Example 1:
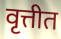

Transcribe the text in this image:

वृत्तीत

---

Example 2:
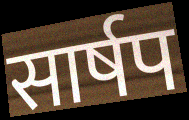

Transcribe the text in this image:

सार्षप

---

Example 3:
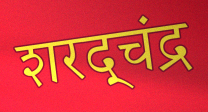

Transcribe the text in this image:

शरद्चंद्र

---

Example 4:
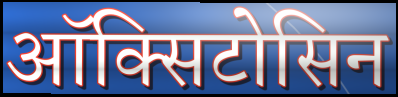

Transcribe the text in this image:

ऑक्सिटोसिन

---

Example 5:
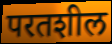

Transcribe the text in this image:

परतशील